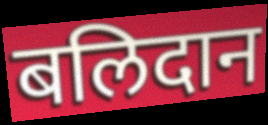
बलिदान